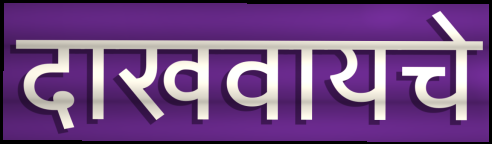
दाखवायचे